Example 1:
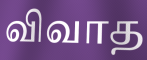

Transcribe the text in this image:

விவாத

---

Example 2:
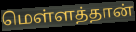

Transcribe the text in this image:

மெள்ளத்தான்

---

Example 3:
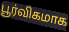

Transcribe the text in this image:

பூர்விகமாக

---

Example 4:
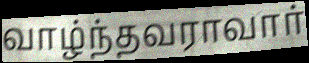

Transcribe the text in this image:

வாழ்ந்தவராவார்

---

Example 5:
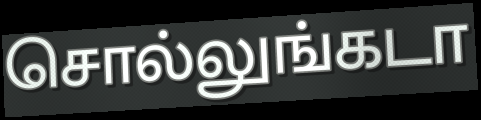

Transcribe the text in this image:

சொல்லுங்கடா